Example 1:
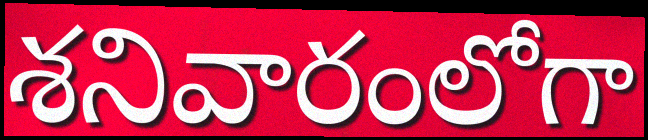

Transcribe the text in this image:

శనివారంలోగా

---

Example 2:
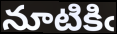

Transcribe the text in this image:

నూటికిఁ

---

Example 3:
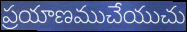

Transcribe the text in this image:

ప్రయాణముచేయుచు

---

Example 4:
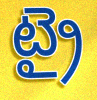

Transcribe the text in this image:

ట్రై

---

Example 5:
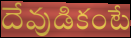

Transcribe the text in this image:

దేవుడికంటే